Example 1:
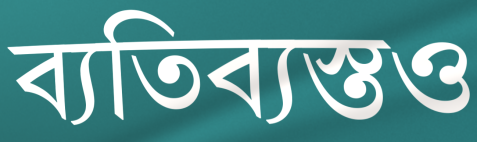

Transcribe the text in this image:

ব্যতিব্যস্তও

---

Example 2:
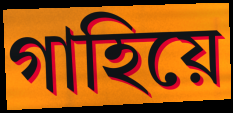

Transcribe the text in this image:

গাহিয়ে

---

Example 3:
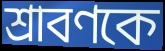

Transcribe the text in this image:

শ্রাবণকে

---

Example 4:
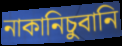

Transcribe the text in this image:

নাকানিচুবানি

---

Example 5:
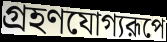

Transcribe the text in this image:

গ্রহণযোগ্যরূপে